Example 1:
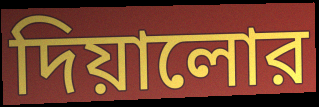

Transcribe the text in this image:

দিয়ালোর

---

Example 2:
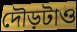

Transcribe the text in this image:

দৌড়টাও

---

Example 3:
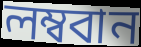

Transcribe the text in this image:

লম্ববান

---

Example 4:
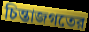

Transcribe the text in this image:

চিন্তাজগতের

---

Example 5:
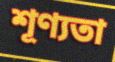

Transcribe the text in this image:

শূণ্যতা